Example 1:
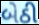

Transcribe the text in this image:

બેઠી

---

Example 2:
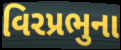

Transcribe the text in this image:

વિરપ્રભુના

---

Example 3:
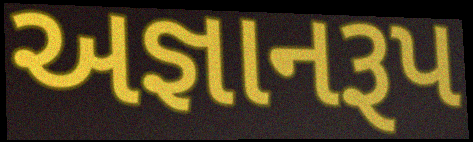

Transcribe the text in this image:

અજ્ઞાનરૂપ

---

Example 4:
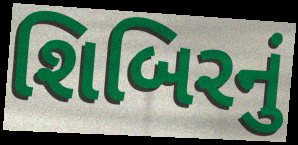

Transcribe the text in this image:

શિબિરનું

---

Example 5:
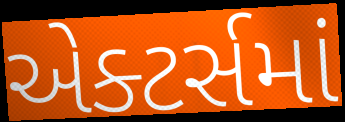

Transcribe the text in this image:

એક્ટર્સમાં